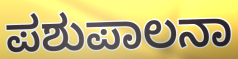
ಪಶುಪಾಲನಾ